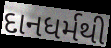
દાનધર્મથી